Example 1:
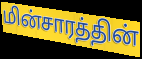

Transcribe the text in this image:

மின்சாரத்தின்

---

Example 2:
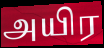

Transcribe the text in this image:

அயிர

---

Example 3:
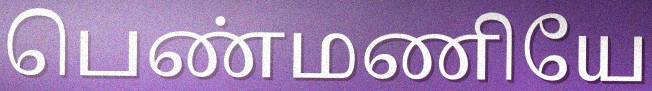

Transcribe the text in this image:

பெண்மணியே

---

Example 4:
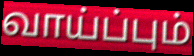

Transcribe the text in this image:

வாய்ப்பும்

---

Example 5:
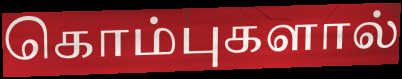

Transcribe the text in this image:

கொம்புகளால்